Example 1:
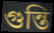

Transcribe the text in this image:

গুন্তি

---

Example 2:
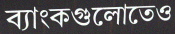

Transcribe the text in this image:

ব্যাংকগুলোতেও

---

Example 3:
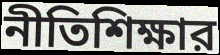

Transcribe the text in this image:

নীতিশিক্ষার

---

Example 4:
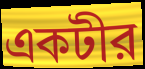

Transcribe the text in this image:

একটীর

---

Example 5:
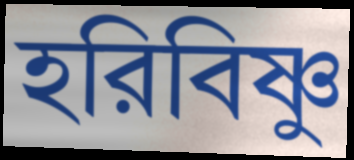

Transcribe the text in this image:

হরিবিষ্ণু